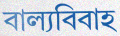
বাল্যবিবাহ